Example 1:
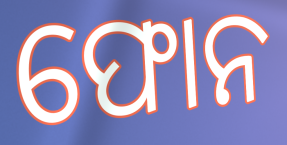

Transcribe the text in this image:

ଫୋନ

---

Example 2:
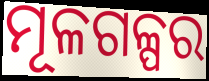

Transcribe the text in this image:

ମୂଳଗଳ୍ପର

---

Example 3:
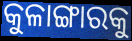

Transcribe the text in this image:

କୁଳାଙ୍ଗାରକୁ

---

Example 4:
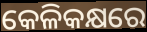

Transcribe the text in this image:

କେଳିକକ୍ଷରେ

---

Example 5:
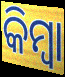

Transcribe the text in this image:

କିମ୍ଵା